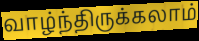
வாழ்ந்திருக்கலாம்